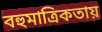
বহুমাত্রিকতায়